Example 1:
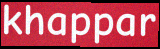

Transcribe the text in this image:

khappar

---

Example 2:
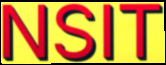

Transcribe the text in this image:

NSIT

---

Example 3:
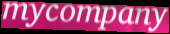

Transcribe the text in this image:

mycompany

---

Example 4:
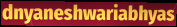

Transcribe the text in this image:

dnyaneshwariabhyas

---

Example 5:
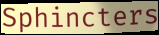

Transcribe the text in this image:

Sphincters